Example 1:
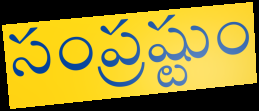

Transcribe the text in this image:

సంప్రష్టుం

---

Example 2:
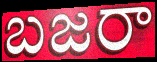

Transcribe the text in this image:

బజరా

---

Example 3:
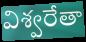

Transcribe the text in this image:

విశ్వరేతా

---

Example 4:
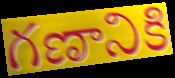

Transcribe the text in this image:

గణానికి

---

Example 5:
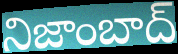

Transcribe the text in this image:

నిజాంబాద్